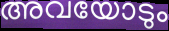
അവയോടും